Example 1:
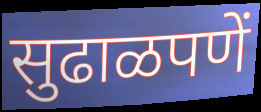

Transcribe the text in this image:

सुढाळपणें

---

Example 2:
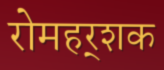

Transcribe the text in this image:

रोमहर्शक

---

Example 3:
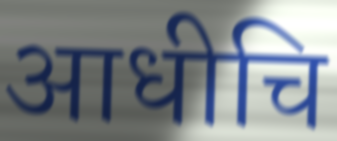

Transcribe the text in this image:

आधीचि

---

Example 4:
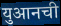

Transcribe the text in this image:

युआनची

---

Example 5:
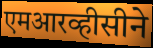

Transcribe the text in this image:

एमआरव्हीसीने